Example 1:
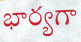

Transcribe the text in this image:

భార్యగా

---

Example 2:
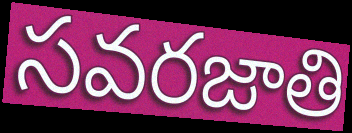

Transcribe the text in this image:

సవరజాతి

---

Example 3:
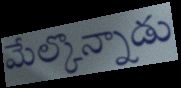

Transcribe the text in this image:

మేల్కొన్నాడు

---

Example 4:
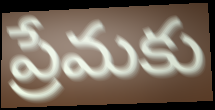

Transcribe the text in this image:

ప్రేమకు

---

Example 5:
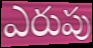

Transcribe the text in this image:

ఎరుపు